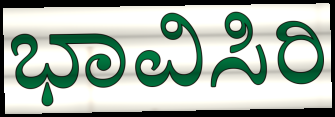
ಭಾವಿಸಿರಿ